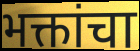
भक्तांचा